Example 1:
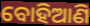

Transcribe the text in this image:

ବୋହିଆଣି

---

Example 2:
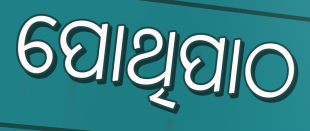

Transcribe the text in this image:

ପୋଥିପାଠ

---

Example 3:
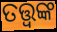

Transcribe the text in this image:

ତତ୍ତ୍ବଙ୍କ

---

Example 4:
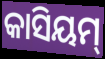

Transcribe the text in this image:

କାସିୟମ୍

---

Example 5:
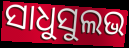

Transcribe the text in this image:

ସାଧୁସୁଲଭ